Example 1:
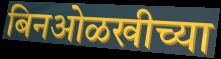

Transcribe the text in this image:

बिनओळखीच्या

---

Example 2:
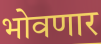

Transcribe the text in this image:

भोवणार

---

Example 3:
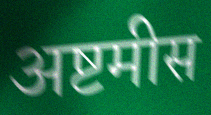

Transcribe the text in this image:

अष्टमीस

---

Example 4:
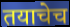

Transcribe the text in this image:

तयाचेच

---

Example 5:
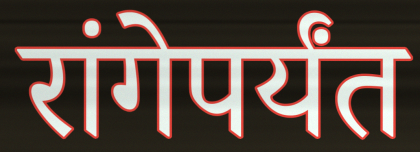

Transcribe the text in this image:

रांगेपर्यंत